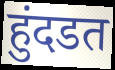
हुंदडत